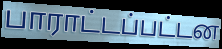
பாராட்டப்பட்டன